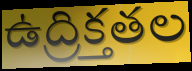
ఉద్రిక్తతల